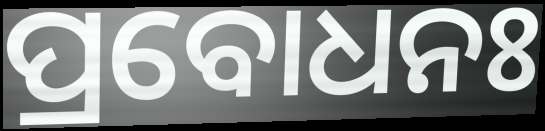
ପ୍ରବୋଧନଃ